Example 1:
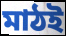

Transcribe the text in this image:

মাঠই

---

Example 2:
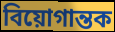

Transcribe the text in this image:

বিয়োগান্তক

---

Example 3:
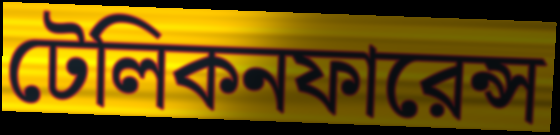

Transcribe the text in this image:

টেলিকনফারেন্স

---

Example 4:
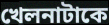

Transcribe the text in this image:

খেলনাটাকে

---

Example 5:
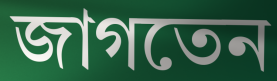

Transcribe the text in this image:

জাগতেন